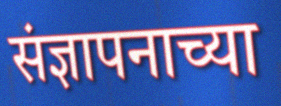
संज्ञापनाच्या